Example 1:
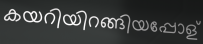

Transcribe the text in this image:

കയറിയിറങ്ങിയപ്പോള്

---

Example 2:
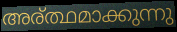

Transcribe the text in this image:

അര്ത്ഥമാക്കുന്നു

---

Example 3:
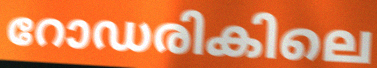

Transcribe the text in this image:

റോഡരികിലെ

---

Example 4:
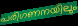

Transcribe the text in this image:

പരിഗണനയിലും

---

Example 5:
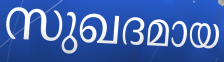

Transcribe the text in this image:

സുഖദമായ